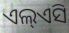
ଏଲ୍ଏସି